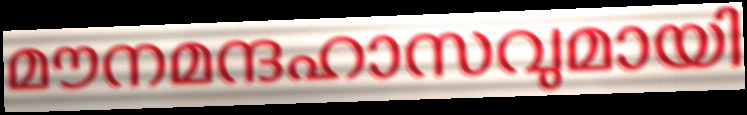
മൗനമന്ദഹാസവുമായി